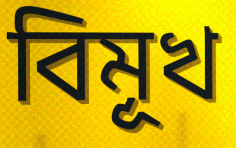
বিমূখ